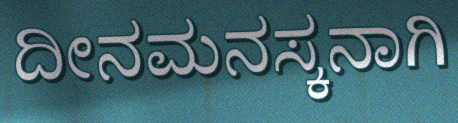
ದೀನಮನಸ್ಕನಾಗಿ